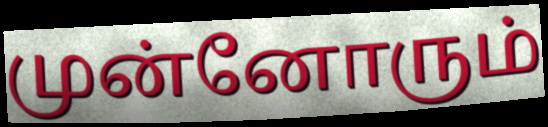
முன்னோரும்